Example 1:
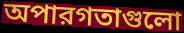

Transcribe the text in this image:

অপারগতাগুলো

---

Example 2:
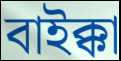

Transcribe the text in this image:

বাইক্কা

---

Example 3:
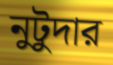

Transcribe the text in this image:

নুটুদার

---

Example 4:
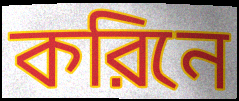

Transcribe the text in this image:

করিনে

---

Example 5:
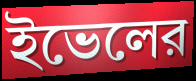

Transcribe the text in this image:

ইভেলের